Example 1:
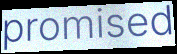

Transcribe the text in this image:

promised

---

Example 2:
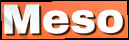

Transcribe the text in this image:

Meso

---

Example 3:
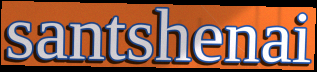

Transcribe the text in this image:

santshenai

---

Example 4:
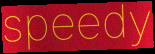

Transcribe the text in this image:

speedy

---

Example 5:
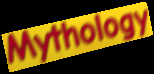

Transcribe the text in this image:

Mythology